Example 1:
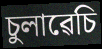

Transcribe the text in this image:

চুলাৱেচি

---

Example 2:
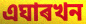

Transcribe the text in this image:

এঘাৰখন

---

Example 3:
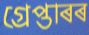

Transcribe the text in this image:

গ্ৰেপ্তাৰৰ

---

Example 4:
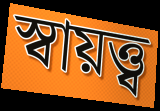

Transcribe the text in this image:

স্বায়ত্ত্ব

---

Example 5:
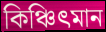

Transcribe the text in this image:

কিঞ্চিৎমান